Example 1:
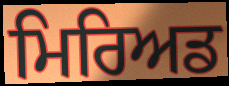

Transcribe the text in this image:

ਮਿਰਿਅਡ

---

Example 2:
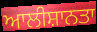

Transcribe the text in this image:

ਆਲੀਸ਼ਾਨਤਾ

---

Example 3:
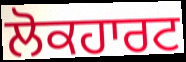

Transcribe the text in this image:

ਲੋਕਹਾਰਟ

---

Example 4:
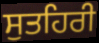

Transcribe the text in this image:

ਸੁਤਹਿਰੀ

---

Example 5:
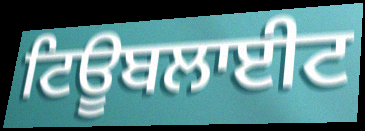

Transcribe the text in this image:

ਟਿਊਬਲਾਈਟ